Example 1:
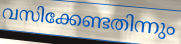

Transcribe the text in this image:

വസിക്കേണ്ടതിന്നും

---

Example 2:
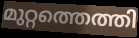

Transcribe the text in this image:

മുറ്റത്തെത്തി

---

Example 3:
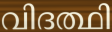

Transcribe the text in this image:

വിദത്ഥി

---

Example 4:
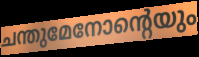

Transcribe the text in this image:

ചന്തുമേനോന്റെയും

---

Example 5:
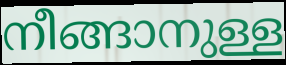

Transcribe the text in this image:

നീങ്ങാനുള്ള